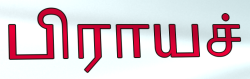
பிராயச்